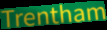
Trentham